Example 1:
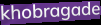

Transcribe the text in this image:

khobragade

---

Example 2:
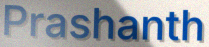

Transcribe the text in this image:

Prashanth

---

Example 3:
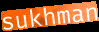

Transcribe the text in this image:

sukhman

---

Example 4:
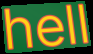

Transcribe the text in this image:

hell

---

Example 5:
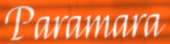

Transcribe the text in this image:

Paramara